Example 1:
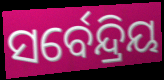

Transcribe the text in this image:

ସର୍ବେନ୍ଦ୍ରିୟ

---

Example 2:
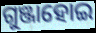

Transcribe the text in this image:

ଗୁଞ୍ଜାହୋଇ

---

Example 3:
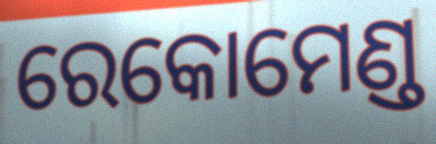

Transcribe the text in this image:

ରେକୋମେଣ୍ଡ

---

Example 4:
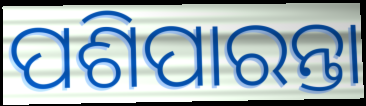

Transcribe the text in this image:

ପଶିପାରନ୍ତା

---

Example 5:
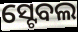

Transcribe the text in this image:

ସ୍ଟେବଲ